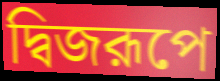
দ্বিজরূপে